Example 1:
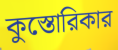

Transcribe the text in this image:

কুস্তোরিকার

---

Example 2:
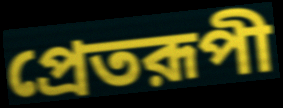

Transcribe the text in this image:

প্রেতরূপী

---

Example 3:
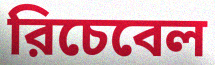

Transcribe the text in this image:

রিচেবেল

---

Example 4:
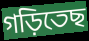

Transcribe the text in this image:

গড়িতেছ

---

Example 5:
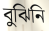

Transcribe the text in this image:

বুঝিনি